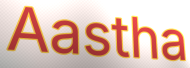
Aastha